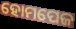
ହୋମପେଜ